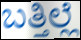
ಬತ್ತಿಲ್ಲೆ